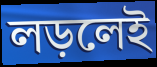
লড়লেই